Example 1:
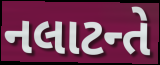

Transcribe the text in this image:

નલાટન્તે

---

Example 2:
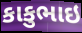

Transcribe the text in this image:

કાકુભાઇ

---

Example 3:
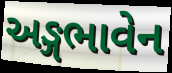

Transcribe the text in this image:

અઙ્ગભાવેન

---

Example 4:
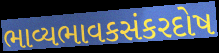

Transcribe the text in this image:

ભાવ્યભાવકસંકરદોષ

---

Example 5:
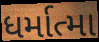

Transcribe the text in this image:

ધર્માત્મા